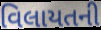
વિલાયતની